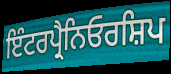
ਇੰਟਰਪ੍ਰੈਨਿਓਰਸ਼ਿਪ